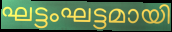
ഘട്ടംഘട്ടമായി